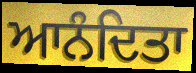
ਆਨੰਦਿਤਾ